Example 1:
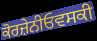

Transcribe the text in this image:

ਕੋਰਜ਼ੇਨੀਓਵਸਕੀ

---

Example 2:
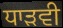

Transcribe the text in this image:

ਧਾੜਵੀ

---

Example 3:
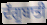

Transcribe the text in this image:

ਦੱਗੂਬਾਤੀ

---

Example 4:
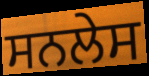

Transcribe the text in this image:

ਸਨਲੇਸ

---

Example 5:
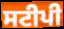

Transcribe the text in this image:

ਸਟੀਪੀ